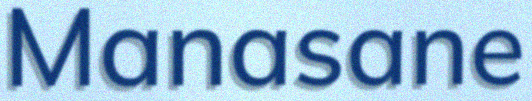
Manasane